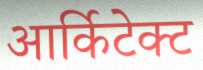
आर्किटेक्ट